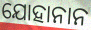
ଯୋହାନାନ